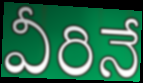
వీరినే